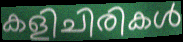
കളിചിരികൾ